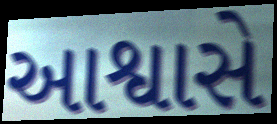
આશ્વાસે